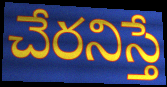
చేరనిస్తే